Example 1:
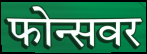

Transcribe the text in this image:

फोन्सवर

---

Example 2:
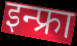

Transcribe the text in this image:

इन्फ्रा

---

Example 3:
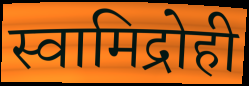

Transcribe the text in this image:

स्वामिद्रोही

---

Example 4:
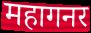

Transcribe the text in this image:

महागनर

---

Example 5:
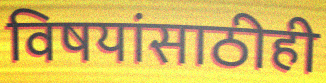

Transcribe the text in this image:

विषयांसाठीही